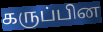
கருப்பின